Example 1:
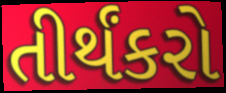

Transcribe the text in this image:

તીર્થંકરો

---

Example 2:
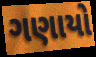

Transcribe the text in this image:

ગણાયો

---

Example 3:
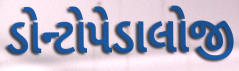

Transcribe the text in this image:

ડોન્ટોપેડાલોજી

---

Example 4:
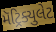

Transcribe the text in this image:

મૅટ્રિક્યુલેટ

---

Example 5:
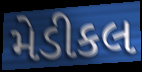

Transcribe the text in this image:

મેડીકલ